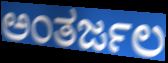
ಅಂತರ್ಜಲ